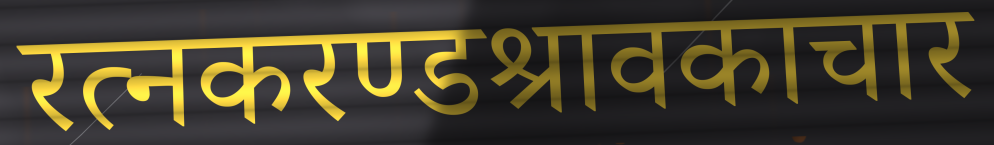
रत्नकरण्डश्रावकाचार